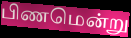
பிணமென்று